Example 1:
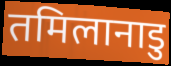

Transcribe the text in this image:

तमिलानाडु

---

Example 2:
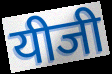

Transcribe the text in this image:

यीजी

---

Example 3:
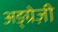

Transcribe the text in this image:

अङ्ग्रेज़ी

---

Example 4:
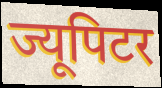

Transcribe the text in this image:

ज्यूपिटर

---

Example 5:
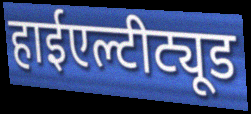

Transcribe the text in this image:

हाईएल्टीट्यूड